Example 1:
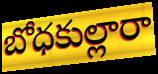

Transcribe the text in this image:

బోధకుల్లారా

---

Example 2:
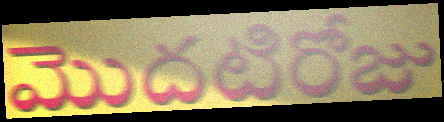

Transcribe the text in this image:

మొదటిరోజు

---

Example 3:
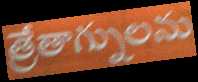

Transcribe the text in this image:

త్రేతాగ్నులను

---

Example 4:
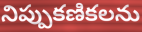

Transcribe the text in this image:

నిప్పుకణికలను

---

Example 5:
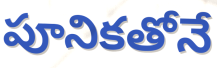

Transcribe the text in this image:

పూనికతోనే